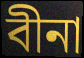
বীনা